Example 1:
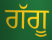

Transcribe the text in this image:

ਗੱਗੂ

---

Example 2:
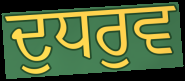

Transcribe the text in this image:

ਦੁਧਰੁਵ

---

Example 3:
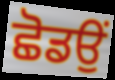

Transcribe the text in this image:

ਛੋਡਉਂ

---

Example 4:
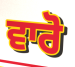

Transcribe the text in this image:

ਵਾਰੋ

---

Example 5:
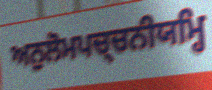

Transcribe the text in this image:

ਅਨੁਲੋਮਪਚ੍ਚਨੀਯਮ੍ਹਿ